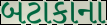
બટાકાના